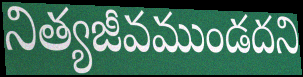
నిత్యజీవముండదని